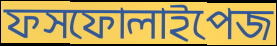
ফসফোলাইপেজ